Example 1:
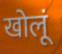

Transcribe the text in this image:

खोलूं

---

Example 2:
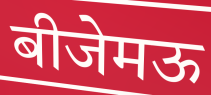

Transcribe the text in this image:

बीजेमऊ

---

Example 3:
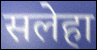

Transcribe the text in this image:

सलेहा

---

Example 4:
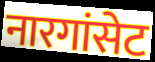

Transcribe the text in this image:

नारगांसेट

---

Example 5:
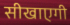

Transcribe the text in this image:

सीखाएगी